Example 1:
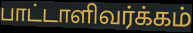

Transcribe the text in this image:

பாட்டாளிவர்க்கம்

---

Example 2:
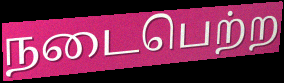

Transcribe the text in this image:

நடைபெற்ற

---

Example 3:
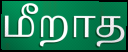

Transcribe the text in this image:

மீறாத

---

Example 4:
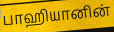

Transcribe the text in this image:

பாஹியானின்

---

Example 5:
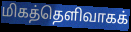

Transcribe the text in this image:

மிகத்தெளிவாகக்